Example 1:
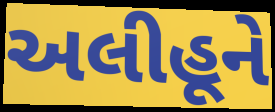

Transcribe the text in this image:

અલીહૂને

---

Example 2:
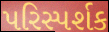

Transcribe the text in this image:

પરિસ્પર્શક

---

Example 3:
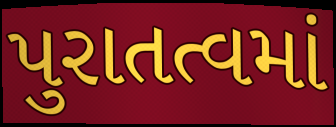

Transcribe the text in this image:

પુરાતત્વમાં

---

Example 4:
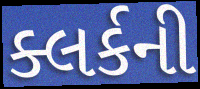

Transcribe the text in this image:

ક્લર્કની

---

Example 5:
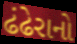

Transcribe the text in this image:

ઢંઢેરાનો